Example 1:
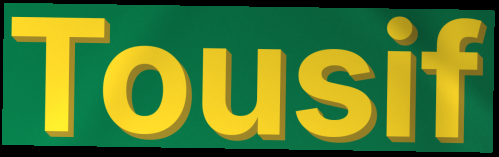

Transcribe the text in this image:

Tousif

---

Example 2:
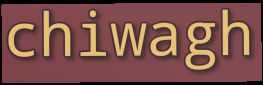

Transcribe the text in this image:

chiwagh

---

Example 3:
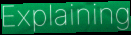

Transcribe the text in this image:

Explaining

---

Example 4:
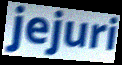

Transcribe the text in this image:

jejuri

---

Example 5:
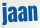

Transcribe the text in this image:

jaan